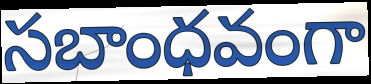
సబాంధవంగా